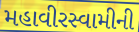
મહાવીરસ્વામીની